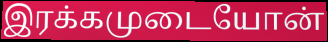
இரக்கமுடையோன்